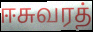
ஈசுவரத்